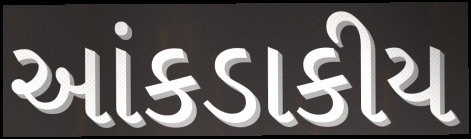
આંકડાકીય